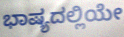
ಭಾಷ್ಯದಲ್ಲಿಯೇ